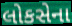
લોકસેના